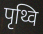
पृथ्वि